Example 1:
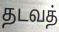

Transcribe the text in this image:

தடவத்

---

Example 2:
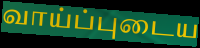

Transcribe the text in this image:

வாய்ப்புடைய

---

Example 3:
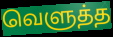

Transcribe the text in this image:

வெளுத்த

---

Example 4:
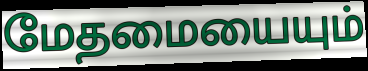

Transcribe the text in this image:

மேதமையையும்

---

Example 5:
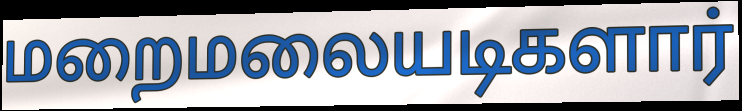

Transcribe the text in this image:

மறைமலையடிகளார்